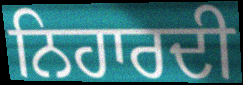
ਨਿਹਾਰਦੀ